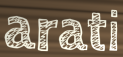
arati